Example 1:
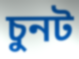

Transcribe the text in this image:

চুনট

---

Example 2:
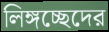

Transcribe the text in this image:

লিঙ্গচ্ছেদের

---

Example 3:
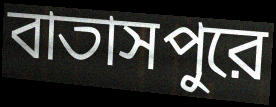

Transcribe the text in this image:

বাতাসপুরে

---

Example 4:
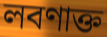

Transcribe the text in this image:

লবণাক্ত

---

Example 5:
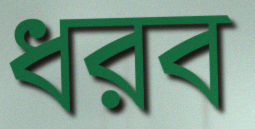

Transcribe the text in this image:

ধরব